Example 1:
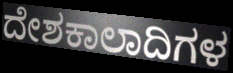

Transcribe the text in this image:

ದೇಶಕಾಲಾದಿಗಳ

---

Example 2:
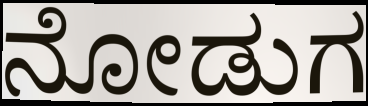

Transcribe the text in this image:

ನೋಡುಗ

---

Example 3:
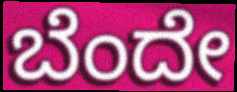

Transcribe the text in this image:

ಬೆಂದೇ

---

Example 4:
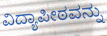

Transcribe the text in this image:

ವಿದ್ಯಾಪೀಠವನ್ನು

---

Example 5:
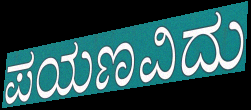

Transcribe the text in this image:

ಪಯಣವಿದು